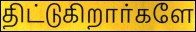
திட்டுகிறார்களே